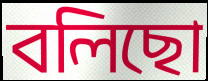
বলিছো